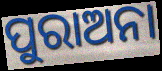
ପୁରାଅନା